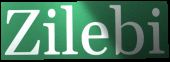
Zilebi